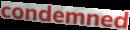
condemned